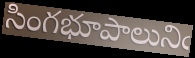
సింగభూపాలునిఁ